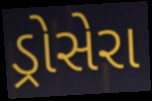
ડ્રોસેરા